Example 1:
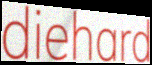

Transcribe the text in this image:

diehard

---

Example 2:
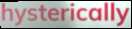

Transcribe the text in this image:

hysterically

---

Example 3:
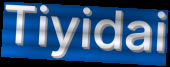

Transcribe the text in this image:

Tiyidai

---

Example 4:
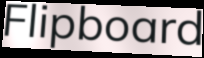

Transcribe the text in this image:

Flipboard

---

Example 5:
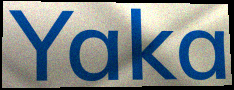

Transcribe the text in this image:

Yaka